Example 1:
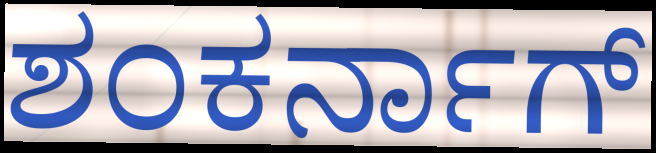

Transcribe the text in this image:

ಶಂಕರ್ನಾಗ್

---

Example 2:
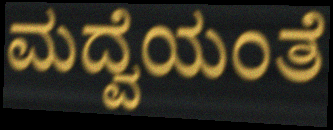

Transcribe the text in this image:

ಮದ್ವೆಯಂತೆ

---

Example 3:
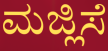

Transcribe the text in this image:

ಮಜ್ಲಿಸೆ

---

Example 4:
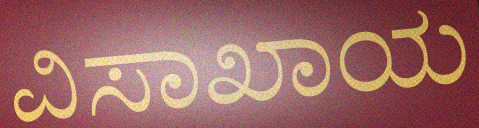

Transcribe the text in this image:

ವಿಸಾಖಾಯ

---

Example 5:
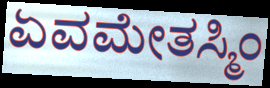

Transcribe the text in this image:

ಏವಮೇತಸ್ಮಿಂ